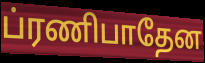
ப்ரணிபாதேன